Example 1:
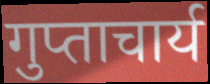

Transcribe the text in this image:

गुप्ताचार्य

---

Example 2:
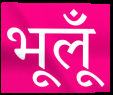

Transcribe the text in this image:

भूलूँ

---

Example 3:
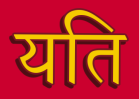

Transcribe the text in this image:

यति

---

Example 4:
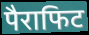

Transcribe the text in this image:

पैराफिट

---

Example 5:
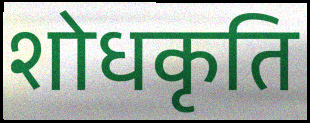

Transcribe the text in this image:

शोधकृति